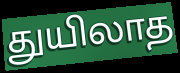
துயிலாத